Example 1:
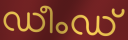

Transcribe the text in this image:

ഡീംഡ്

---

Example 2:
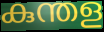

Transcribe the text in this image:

കുന്തള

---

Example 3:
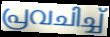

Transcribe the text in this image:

പ്രവചിച്ച്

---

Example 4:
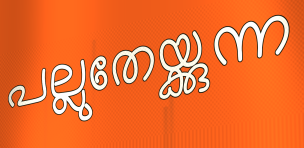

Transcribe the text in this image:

പല്ലുതേയ്ക്കുന്ന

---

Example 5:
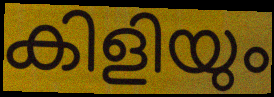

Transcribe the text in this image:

കിളിയും